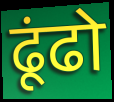
ढूंढो